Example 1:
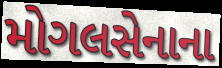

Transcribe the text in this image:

મોગલસેનાના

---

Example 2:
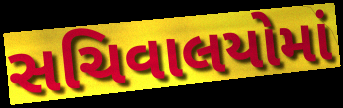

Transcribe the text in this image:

સચિવાલયોમાં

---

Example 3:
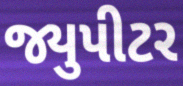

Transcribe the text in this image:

જ્યુપીટર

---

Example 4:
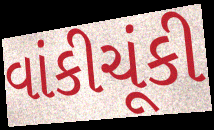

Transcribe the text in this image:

વાંકીચૂંકી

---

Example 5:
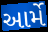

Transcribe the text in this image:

આર્મે